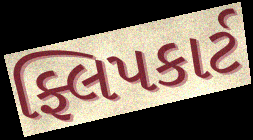
ફ્લિપકાર્ટ